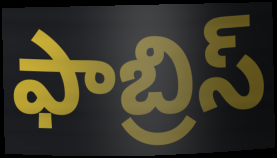
ఫాబ్రిస్